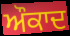
ਔਕਾਦ